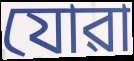
যোৱা